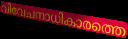
വിവേചനാധികാരത്തെ